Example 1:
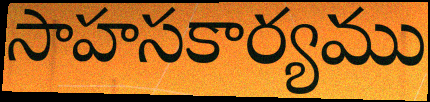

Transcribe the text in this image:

సాహసకార్యము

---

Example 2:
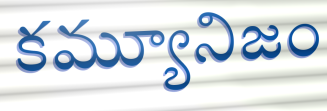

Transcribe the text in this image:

కమ్యూనిజం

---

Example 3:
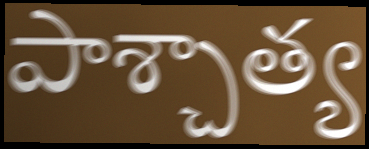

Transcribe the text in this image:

పాశ్చాత్య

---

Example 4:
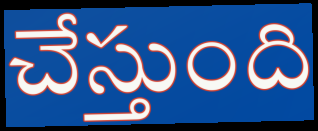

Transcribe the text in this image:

చేస్తుంది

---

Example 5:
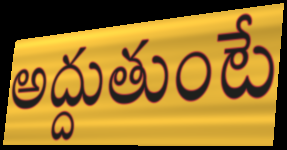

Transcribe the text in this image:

అద్దుతుంటే